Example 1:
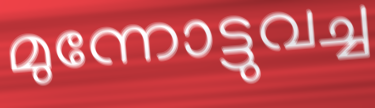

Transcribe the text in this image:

മുന്നോട്ടുവച്ച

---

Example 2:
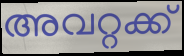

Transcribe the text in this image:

അവറ്റക്ക്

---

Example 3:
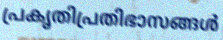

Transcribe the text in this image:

പ്രകൃതിപ്രതിഭാസങ്ങൾ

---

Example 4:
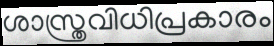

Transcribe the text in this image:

ശാസ്ത്രവിധിപ്രകാരം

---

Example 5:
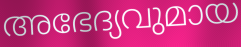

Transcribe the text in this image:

അഭേദ്യവുമായ